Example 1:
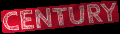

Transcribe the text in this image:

CENTURY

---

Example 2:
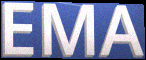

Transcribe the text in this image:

EMA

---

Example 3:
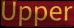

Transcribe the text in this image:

Upper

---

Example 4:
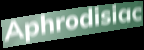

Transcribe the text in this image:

Aphrodisiac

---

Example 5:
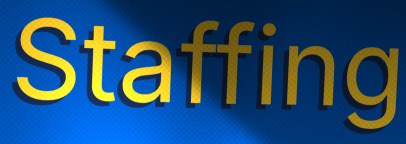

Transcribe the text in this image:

Staffing